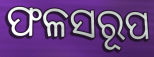
ଫଳସରୂପ